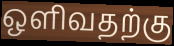
ஒளிவதற்கு